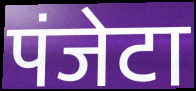
पंजेटा